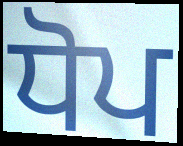
ਧੋਪ